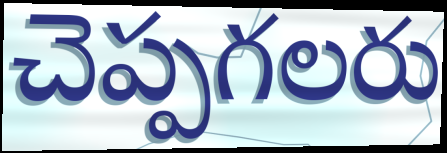
చెప్పగలరు